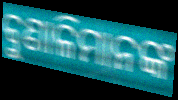
ବୁଣାଳିମାନଙ୍କ